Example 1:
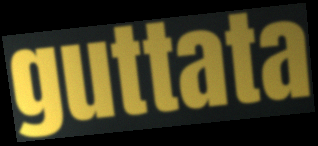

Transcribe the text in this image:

guttata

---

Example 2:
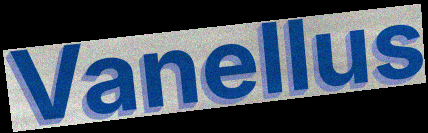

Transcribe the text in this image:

Vanellus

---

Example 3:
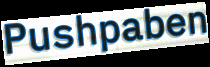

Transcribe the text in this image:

Pushpaben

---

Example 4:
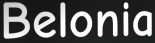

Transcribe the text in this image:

Belonia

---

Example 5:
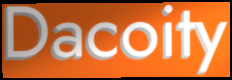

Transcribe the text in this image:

Dacoity